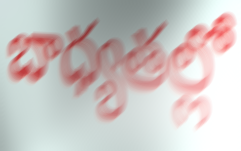
బాధ్యతల్లో